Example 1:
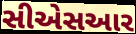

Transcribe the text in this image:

સીએસઆર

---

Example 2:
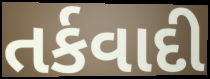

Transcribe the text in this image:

તર્કવાદી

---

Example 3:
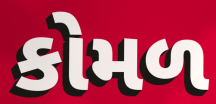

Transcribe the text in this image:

કોમળ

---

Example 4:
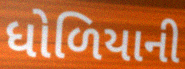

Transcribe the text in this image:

ધોળિયાની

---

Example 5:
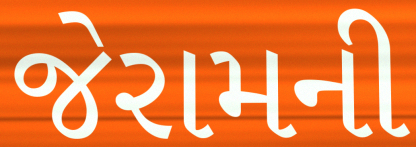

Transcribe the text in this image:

જેરામની